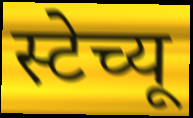
स्टेच्यू